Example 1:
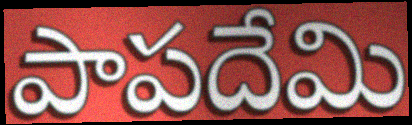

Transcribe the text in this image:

పాపదేమి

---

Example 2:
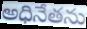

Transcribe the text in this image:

అధినేతను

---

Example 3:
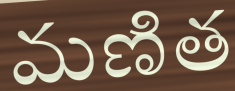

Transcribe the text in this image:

మణిత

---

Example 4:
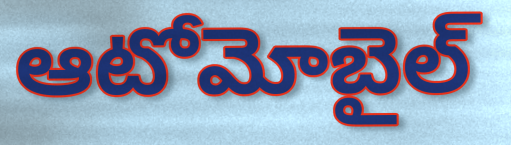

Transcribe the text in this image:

ఆటోమోబైల్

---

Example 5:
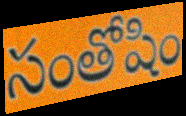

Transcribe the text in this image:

సంతోషిం